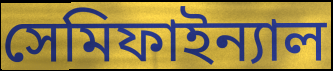
সেমিফাইন্যাল